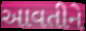
આવતીને